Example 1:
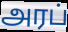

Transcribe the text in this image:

அரப்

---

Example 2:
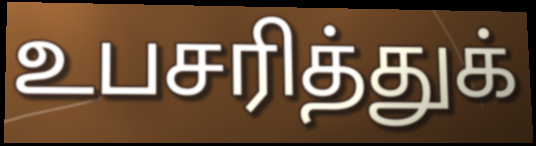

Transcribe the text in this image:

உபசரித்துக்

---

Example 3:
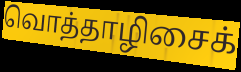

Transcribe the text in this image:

வொத்தாழிசைக்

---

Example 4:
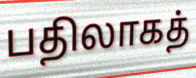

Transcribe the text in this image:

பதிலாகத்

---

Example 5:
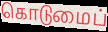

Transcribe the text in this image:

கொடுமைப்